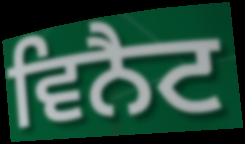
ਵਿਨੈਟ